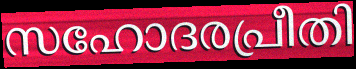
സഹോദരപ്രീതി